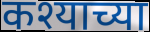
कश्याच्या